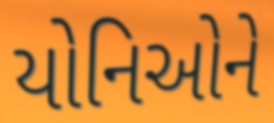
યોનિઓને